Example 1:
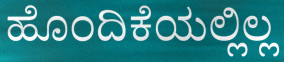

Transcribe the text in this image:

ಹೊಂದಿಕೆಯಲ್ಲಿಲ್ಲ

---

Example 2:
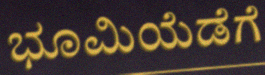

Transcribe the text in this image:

ಭೂಮಿಯೆಡೆಗೆ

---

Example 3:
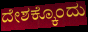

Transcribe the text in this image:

ದೇಶಕ್ಕೊಂದು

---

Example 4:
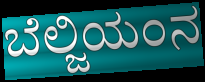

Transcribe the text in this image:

ಬೆಲ್ಜಿಯಂನ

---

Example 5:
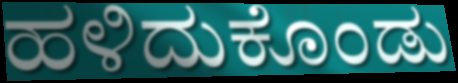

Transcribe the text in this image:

ಹಳಿದುಕೊಂಡು